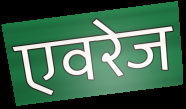
एवरेज